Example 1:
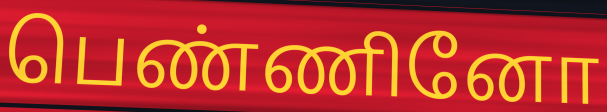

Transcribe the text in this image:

பெண்ணினோ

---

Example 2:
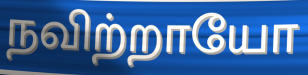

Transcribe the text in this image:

நவிற்றாயோ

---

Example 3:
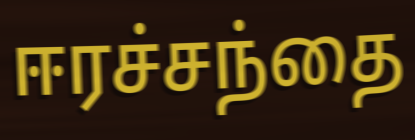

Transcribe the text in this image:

ஈரச்சந்தை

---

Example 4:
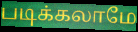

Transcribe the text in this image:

படிக்கலாமே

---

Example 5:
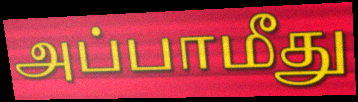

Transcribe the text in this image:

அப்பாமீது